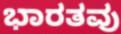
ಭಾರತವು